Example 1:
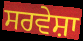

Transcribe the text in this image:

ਸਰਵੇਸ਼ਾ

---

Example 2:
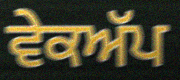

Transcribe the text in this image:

ਵੇਕਅੱਪ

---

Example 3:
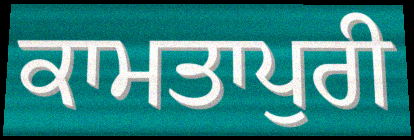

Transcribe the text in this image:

ਕਾਮਤਾਪੁਰੀ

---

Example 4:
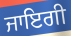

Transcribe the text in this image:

ਜਾਇਗੀ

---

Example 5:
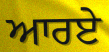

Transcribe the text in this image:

ਆਰਏ